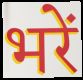
भरें